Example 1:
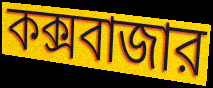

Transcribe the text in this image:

কক্সবাজার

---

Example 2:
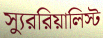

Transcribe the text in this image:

স্যুররিয়ালিস্ট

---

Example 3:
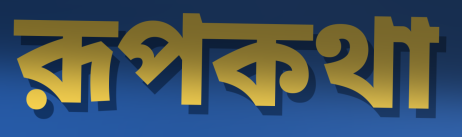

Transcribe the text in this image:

রূপকথা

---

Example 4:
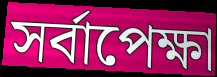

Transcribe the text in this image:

সর্বাপেক্ষা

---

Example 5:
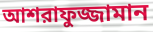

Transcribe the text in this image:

আশরাফুজ্জামান